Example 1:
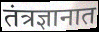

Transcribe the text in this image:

तंत्रज्ञानात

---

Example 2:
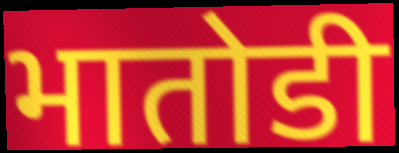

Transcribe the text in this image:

भातोडी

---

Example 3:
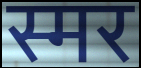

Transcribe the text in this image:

स्मर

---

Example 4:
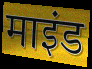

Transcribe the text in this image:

माइंड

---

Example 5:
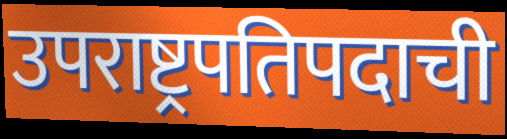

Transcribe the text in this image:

उपराष्ट्रपतिपदाची